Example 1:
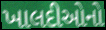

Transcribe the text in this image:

ખાલદીઓનો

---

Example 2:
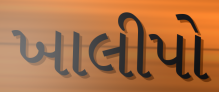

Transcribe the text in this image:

ખાલીપો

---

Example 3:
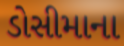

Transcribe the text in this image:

ડોસીમાના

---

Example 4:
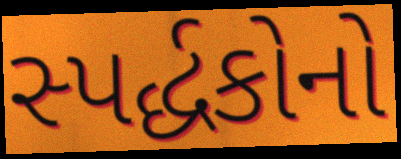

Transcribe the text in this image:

સ્પર્દ્ધકોનો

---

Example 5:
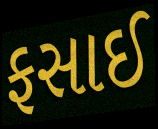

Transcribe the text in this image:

ફસાઈ